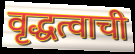
वृद्धत्वाची